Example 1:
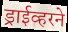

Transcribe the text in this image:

ड्राईव्हरने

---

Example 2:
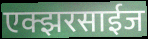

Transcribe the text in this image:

एक्झरसाईज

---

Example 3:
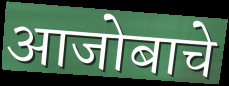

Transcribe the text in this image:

आजोबाचे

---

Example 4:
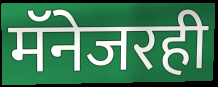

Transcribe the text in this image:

मॅनेजरही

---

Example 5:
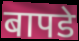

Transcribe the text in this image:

बापडे